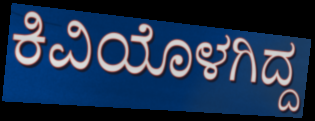
ಕಿವಿಯೊಳಗಿದ್ದ